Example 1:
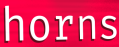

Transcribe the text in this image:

horns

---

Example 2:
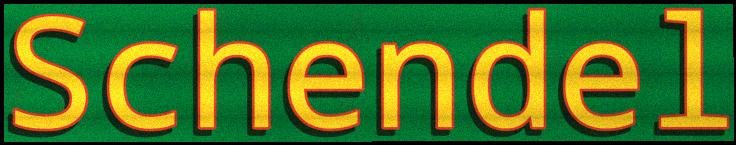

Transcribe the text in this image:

Schendel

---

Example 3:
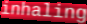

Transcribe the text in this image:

inhaling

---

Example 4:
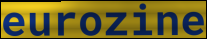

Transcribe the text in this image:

eurozine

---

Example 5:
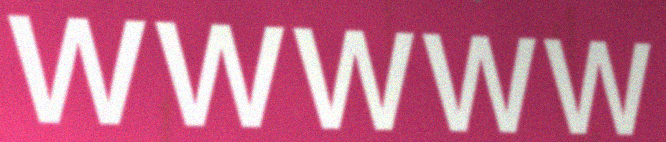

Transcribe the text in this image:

wwwww